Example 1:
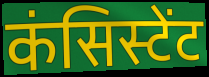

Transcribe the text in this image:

कंसिस्टेंट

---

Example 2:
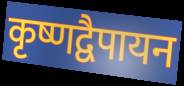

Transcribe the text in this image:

कृष्णद्वैपायन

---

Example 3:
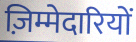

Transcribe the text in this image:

ज़िम्मेदारियों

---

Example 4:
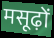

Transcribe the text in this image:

मसूढ़ों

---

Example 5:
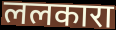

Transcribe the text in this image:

ललकारा